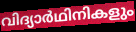
വിദ്യാർഥിനികളും